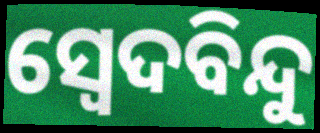
ସ୍ଵେଦବିନ୍ଦୁ